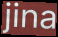
jina